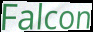
Falcon